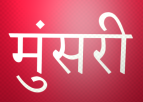
मुंसरी